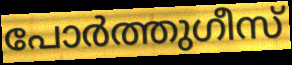
പോർത്തുഗീസ്